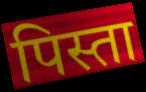
पिस्ता